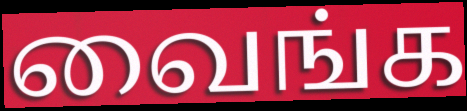
வைங்க